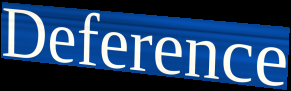
Deference